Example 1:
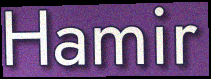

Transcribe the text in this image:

Hamir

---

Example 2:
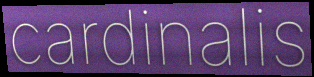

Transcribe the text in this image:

cardinalis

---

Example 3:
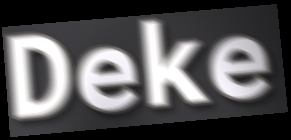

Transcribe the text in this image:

Deke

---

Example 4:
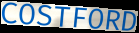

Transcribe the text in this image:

COSTFORD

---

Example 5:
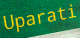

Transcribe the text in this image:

Uparati